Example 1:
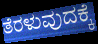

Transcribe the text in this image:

ತೆರಳುವುದಕ್ಕೆ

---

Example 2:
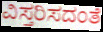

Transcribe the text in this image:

ವಿಸ್ತರಿಸದಂತೆ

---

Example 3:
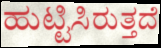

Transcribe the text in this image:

ಹುಟ್ಟಿಸಿರುತ್ತದೆ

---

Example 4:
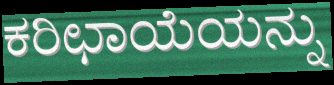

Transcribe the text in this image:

ಕರಿಛಾಯೆಯನ್ನು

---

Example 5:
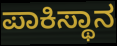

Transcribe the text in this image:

ಪಾಕಿಸ್ಥಾನ